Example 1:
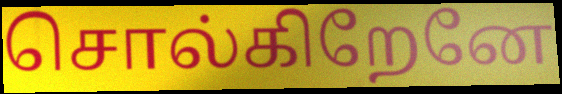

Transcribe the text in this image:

சொல்கிறேனே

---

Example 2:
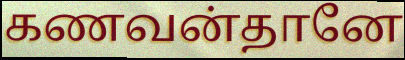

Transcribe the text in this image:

கணவன்தானே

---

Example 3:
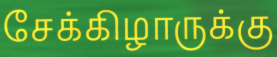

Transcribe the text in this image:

சேக்கிழாருக்கு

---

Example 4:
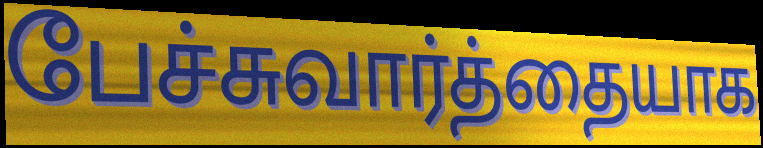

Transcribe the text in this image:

பேச்சுவார்த்தையாக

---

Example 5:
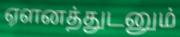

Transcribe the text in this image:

ஏளனத்துடனும்